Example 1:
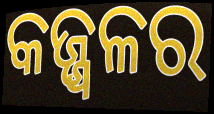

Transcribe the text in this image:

କଜ୍ଜ୍ୱଳର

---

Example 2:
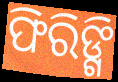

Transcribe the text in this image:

ଫିରିଙ୍ଗି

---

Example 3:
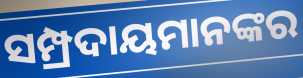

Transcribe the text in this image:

ସମ୍ପ୍ରଦାୟମାନଙ୍କର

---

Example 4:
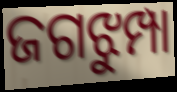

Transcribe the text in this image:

ଜଗଝୁମ୍ପା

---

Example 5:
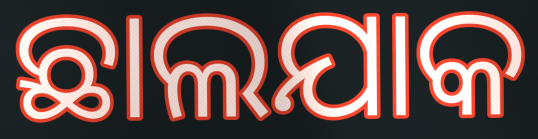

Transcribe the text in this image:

ଛାଲଯାକ